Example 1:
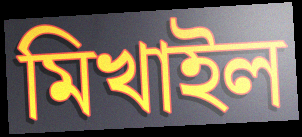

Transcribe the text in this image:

মিখাইল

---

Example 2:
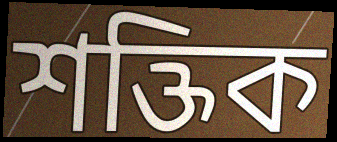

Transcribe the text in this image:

শক্তিক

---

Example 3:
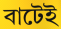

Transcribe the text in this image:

বাটেই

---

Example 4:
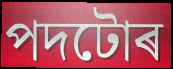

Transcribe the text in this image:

পদটোৰ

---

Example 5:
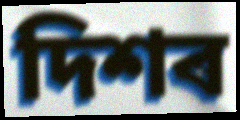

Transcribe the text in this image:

দিশৰ